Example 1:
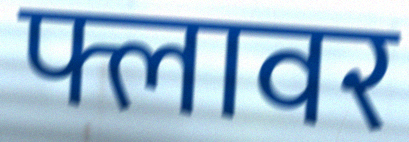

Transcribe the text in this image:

फ्लावर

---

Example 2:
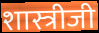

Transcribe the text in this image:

शास्त्रीजी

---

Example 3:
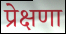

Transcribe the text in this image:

प्रेक्षणा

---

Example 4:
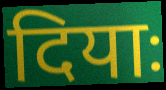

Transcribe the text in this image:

दियाः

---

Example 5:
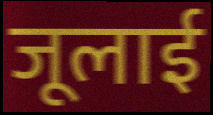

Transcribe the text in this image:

जूलाई